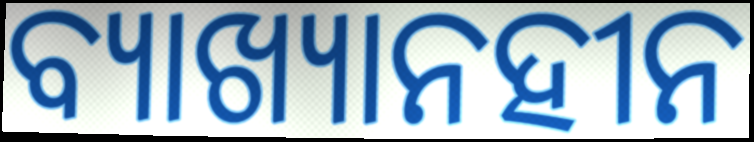
ବ୍ୟାଖ୍ୟାନହୀନ